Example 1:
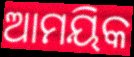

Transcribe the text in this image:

ଆମୟିକ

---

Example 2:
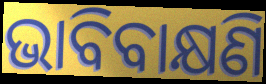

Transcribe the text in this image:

ଭାବିବାକ୍ଷଣି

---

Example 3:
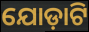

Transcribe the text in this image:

ଯୋଡ଼ାଟି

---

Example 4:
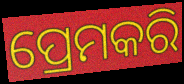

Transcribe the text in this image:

ପ୍ରେମକରି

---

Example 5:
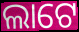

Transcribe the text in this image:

ଲାଟେ